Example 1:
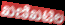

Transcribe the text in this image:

ಖಣಿಖಟಿಲ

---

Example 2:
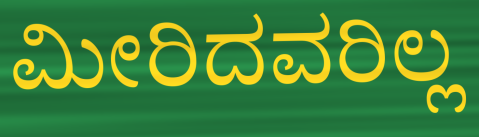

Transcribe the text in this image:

ಮೀರಿದವರಿಲ್ಲ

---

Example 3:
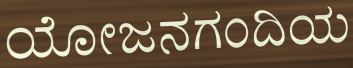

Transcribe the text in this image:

ಯೋಜನಗಂದಿಯ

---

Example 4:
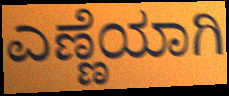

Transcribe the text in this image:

ಎಣ್ಣೆಯಾಗಿ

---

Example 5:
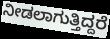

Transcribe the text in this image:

ನೀಡಲಾಗುತ್ತಿದ್ದರೆ